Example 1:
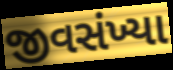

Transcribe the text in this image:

જીવસંખ્યા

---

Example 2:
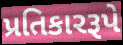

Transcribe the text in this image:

પ્રતિકારરૂપે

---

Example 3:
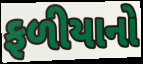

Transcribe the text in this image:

ફળીયાનો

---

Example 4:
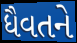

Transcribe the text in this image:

ધૈવતને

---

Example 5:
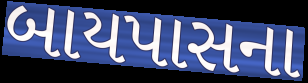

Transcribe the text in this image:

બાયપાસના